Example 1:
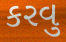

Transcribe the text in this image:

કરવુ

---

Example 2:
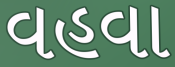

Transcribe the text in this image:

વહવા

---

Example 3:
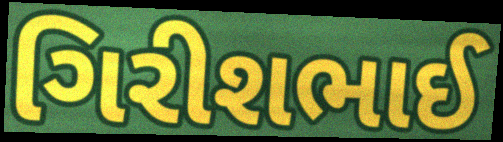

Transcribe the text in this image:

ગિરીશભાઈ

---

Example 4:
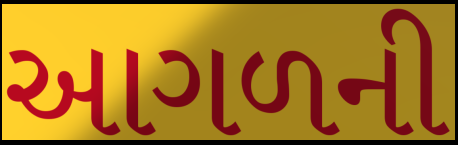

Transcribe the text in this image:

આગળની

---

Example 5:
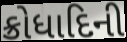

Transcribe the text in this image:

ક્રોધાદિની